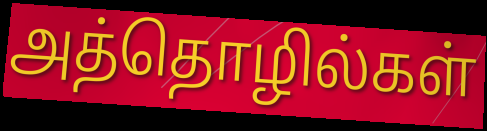
அத்தொழில்கள்